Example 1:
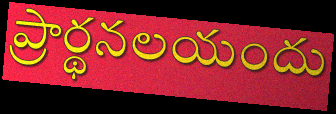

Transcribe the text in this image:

ప్రార్థనలయందు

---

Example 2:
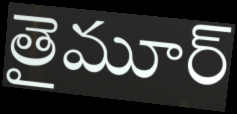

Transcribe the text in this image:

తైమూర్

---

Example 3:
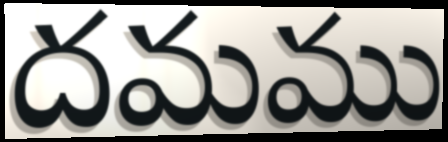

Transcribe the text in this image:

దమము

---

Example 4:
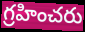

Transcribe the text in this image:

గ్రహించరు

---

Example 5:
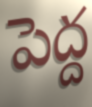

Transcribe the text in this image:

పెద్ద